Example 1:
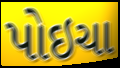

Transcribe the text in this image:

પોઇચા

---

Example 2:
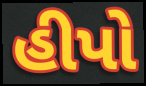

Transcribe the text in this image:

હીપો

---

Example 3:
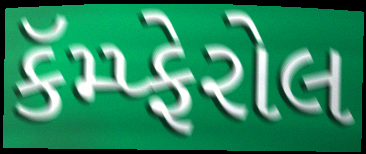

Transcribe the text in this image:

કૅમ્પ્ફેરોલ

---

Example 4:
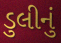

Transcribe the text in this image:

ડુલીનું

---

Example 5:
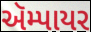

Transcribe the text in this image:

ઍમ્પાયર